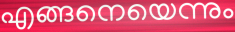
എങ്ങനെയെന്നും